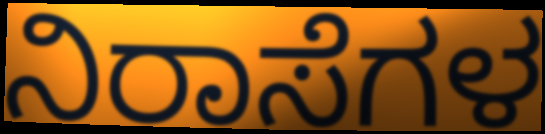
ನಿರಾಸೆಗಳ